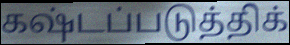
கஷ்டப்படுத்திக்